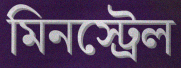
মিনস্ট্রেল